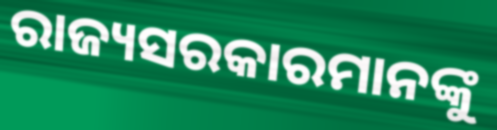
ରାଜ୍ୟସରକାରମାନଙ୍କୁ